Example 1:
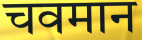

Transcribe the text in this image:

चवमान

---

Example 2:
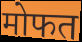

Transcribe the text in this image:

मोफत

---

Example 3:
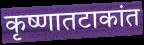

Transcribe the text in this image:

कृष्णातटाकांत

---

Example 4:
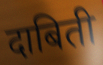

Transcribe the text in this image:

दाबिती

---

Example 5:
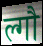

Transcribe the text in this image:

ल्गौ